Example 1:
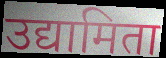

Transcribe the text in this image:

उद्यामिता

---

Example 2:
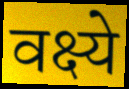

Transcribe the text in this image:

वक्ष्ये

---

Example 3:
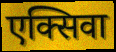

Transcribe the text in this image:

एक्सिवा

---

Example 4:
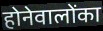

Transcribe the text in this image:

होनेवालोंका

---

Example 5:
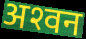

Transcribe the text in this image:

अश्वन